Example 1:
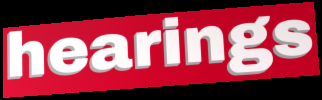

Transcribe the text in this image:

hearings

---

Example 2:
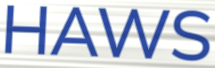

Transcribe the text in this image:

HAWS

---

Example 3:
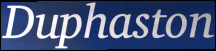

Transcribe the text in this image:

Duphaston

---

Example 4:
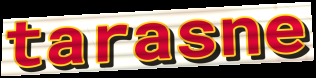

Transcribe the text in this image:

tarasne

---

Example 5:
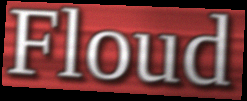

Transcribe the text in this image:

Floud